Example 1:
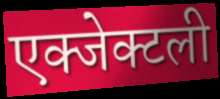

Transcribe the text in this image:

एक्जेक्टली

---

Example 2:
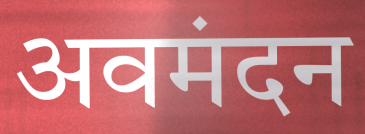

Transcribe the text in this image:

अवमंदन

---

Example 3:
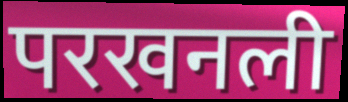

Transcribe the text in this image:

परखनली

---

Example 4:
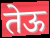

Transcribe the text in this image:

तेऊ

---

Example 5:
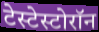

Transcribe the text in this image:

टेस्टेस्टोरॉन